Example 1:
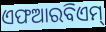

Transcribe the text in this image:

ଏଫଆରବିଏମ୍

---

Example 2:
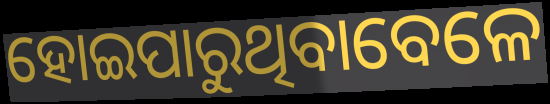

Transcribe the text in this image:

ହୋଇପାରୁଥିବାବେଳେ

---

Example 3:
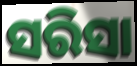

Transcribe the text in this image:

ସରିସା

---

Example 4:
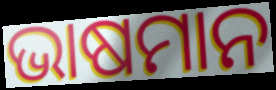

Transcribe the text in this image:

ଭାଷମାନ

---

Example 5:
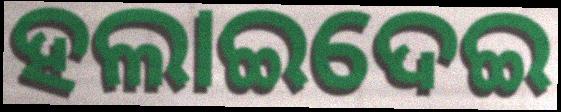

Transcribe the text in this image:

ହଲାଇଦେଇ